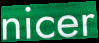
nicer